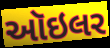
ઑઇલર